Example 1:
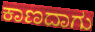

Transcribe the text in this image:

ಕಾಣದಾಗು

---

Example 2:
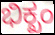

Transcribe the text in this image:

ಭಿಕ್ಖಂ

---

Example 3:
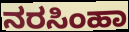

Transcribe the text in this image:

ನರಸಿಂಹಾ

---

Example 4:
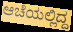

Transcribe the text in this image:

ಆಚೆಯಲ್ಲಿದ್ದ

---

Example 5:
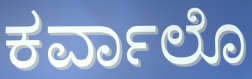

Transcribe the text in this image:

ಕರ್ವಾಲೊ